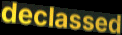
declassed